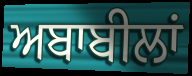
ਅਬਾਬੀਲਾਂ